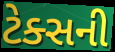
ટેક્સની